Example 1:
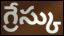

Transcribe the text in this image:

గ్రేస్కు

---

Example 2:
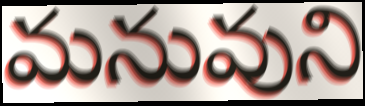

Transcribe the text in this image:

మనువుని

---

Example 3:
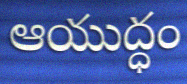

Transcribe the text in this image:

ఆయుద్ధం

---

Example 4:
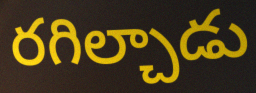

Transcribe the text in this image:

రగిల్చాడు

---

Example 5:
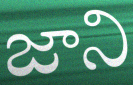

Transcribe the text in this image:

జాని